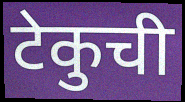
टेकुची